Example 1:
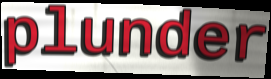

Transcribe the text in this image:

plunder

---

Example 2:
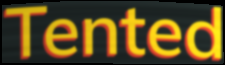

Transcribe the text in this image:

Tented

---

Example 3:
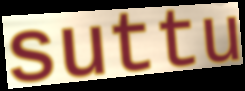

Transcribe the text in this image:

suttu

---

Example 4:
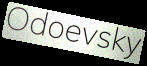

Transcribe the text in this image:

Odoevsky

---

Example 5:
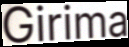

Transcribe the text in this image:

Girima